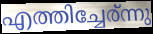
എത്തിച്ചേര്ന്നു